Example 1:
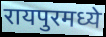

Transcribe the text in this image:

रायपुरमध्ये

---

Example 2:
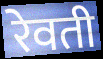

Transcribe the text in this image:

रेवती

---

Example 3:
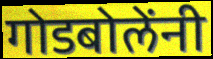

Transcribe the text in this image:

गोडबोलेंनी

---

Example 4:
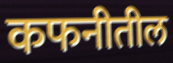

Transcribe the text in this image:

कफनीतील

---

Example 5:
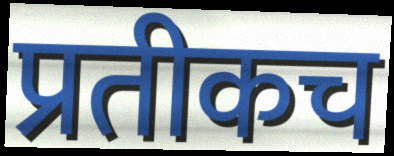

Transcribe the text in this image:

प्रतीकच